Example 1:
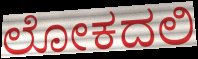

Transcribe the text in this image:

ಲೋಕದಲಿ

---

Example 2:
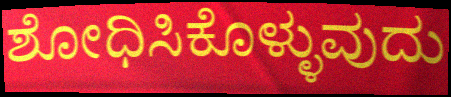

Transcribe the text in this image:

ಶೋಧಿಸಿಕೊಳ್ಳುವುದು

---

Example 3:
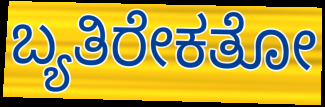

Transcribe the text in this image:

ಬ್ಯತಿರೇಕತೋ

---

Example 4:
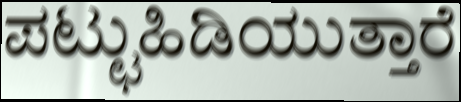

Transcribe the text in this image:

ಪಟ್ಟುಹಿಡಿಯುತ್ತಾರೆ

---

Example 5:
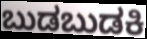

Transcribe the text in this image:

ಬುಡಬುಡಕಿ